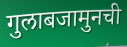
गुलाबजामुनची